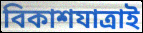
বিকাশযাত্ৰাই